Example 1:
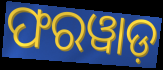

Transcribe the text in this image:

ଫରୱାଡ଼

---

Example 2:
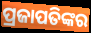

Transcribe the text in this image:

ପ୍ରଜାପତିଙ୍କର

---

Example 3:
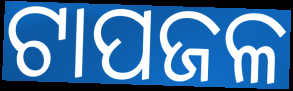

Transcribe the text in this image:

ଟାପଜଳ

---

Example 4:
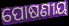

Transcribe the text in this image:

ପୋଷଣୀୟ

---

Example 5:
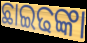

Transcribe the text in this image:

ଛାଇଢଙ୍କା